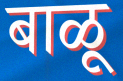
बाळू